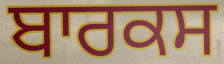
ਬਾਰਕਸ